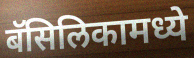
बॅसिलिकामध्ये